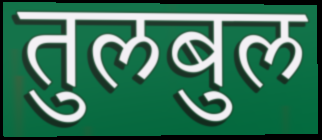
तुलबुल